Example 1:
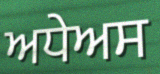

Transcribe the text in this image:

ਅਧੇਅਸ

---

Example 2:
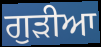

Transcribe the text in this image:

ਗੁਡ਼ੀਆ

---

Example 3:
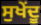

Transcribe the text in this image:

ਸੁਖੇਂਦੂ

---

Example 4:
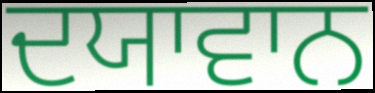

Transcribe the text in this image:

ਦਯਾਵਾਨ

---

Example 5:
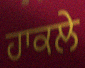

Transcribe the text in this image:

ਹਾਕਲੇ